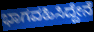
ಭಾಗವಹಿಸಿದ್ದೇನೆ